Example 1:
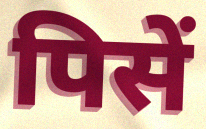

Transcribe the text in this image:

पिसें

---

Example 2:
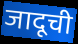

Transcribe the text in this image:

जादूची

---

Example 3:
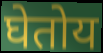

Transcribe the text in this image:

घेतोय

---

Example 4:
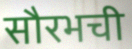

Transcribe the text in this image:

सौरभची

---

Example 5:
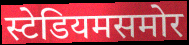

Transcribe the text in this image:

स्टेडियमसमोर